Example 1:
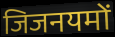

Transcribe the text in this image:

जिजनयमों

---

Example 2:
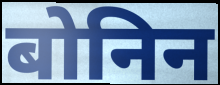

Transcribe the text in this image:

बोनिन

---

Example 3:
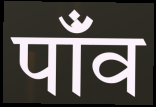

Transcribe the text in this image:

पांँव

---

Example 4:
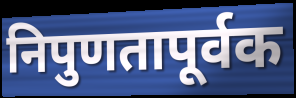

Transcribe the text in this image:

निपुणतापूर्वक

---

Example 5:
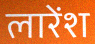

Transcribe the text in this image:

लारेंश